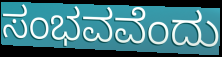
ಸಂಭವವೆಂದು